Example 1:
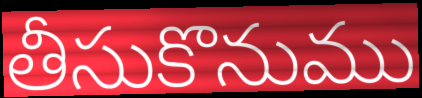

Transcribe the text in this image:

తీసుకొనుము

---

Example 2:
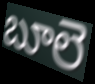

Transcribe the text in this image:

బూలె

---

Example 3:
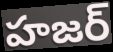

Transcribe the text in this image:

హజర్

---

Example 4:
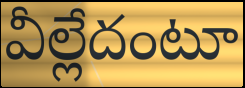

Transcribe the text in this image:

వీల్లేదంటూ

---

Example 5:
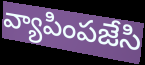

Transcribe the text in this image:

వ్యాపింపజేసి